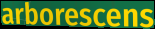
arborescens